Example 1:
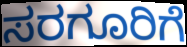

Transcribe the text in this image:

ಸರಗೂರಿಗೆ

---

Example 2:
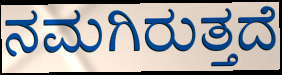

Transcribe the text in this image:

ನಮಗಿರುತ್ತದೆ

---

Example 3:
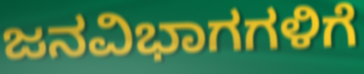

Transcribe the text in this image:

ಜನವಿಭಾಗಗಳಿಗೆ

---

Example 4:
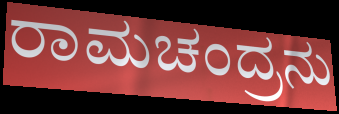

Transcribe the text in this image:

ರಾಮಚಂದ್ರನು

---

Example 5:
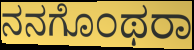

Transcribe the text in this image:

ನನಗೊಂಥರಾ